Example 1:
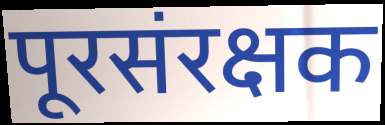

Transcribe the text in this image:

पूरसंरक्षक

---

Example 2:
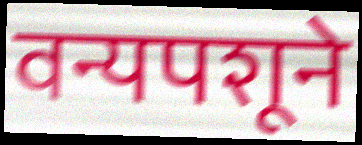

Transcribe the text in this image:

वन्यपशूने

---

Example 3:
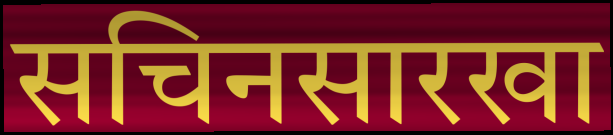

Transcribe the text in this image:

सचिनसारखा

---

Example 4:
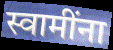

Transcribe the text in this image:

स्वामींना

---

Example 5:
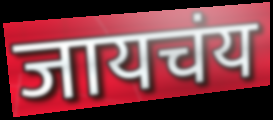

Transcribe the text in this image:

जायचंय